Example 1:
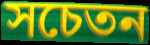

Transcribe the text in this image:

সচেতন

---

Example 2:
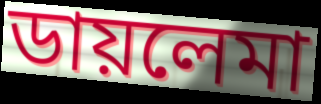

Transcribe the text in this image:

ডায়লেমা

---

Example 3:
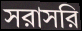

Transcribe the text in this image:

সরাসরি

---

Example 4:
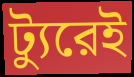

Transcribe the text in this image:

ট্যুরেই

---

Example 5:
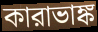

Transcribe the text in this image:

কারাভাঙ্ক